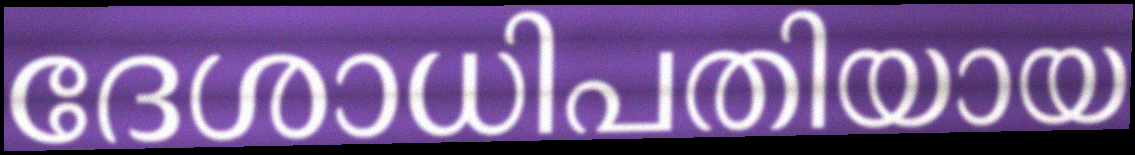
ദേശാധിപതിയായ